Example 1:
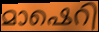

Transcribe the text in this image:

മാഷെറി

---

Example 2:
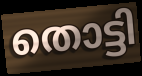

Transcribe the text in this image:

തൊട്ടി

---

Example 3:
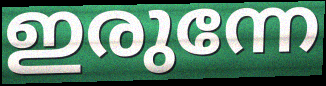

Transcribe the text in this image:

ഇരുന്നേ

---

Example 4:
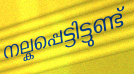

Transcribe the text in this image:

നല്കപ്പെട്ടിട്ടുണ്ട്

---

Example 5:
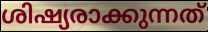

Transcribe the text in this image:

ശിഷ്യരാക്കുന്നത്